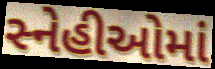
સ્નેહીઓમાં